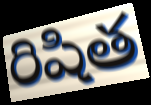
రిషిత